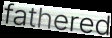
fathered